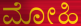
ಮೋಹಿ